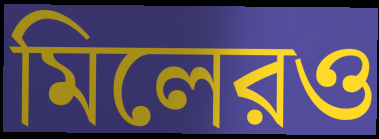
মিলেরও